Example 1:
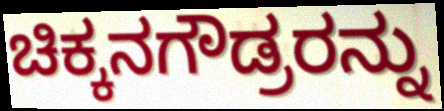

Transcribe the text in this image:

ಚಿಕ್ಕನಗೌಡ್ರರನ್ನು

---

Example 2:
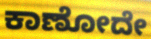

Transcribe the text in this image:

ಕಾಣೋದೇ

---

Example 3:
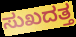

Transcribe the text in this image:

ಸುಖದತ್ತ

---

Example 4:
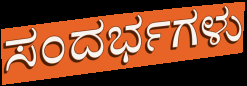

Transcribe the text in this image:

ಸಂದರ್ಭಗಳು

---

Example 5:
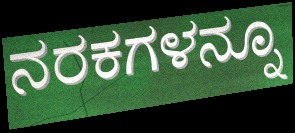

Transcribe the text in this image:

ನರಕಗಳನ್ನೂ